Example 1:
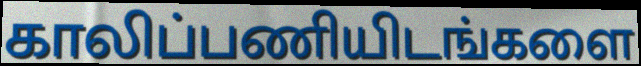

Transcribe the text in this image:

காலிப்பணியிடங்களை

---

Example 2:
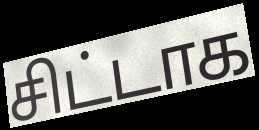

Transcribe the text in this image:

சிட்டாக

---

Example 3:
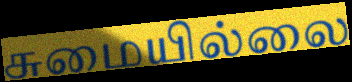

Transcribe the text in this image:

சுமையில்லை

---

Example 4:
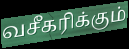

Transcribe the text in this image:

வசீகரிக்கும்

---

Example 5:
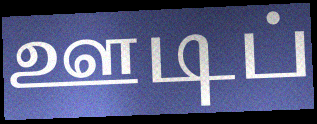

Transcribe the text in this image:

ஊடிப்